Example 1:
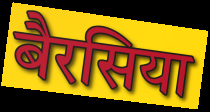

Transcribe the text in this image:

बैरसिया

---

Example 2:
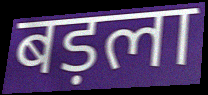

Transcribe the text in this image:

बड़ला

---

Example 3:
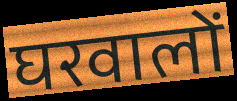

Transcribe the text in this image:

घरवालों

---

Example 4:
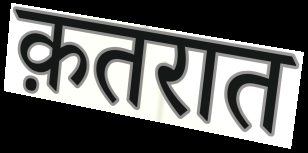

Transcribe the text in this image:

क़तरात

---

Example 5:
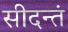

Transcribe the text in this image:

सीदन्तं